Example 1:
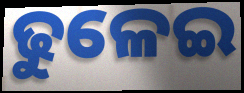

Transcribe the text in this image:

ଢୁଳେଇ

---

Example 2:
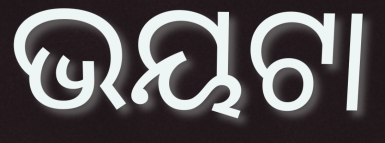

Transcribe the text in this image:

ଭୟଟା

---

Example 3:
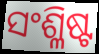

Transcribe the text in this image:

ସଂଶ୍ଳିଷ୍ଟ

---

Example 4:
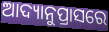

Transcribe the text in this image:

ଆଦ୍ୟାନୁପ୍ରାସରେ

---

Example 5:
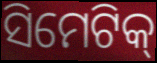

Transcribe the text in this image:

ସିମେଟିକ୍